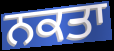
ਨਕਤਾ